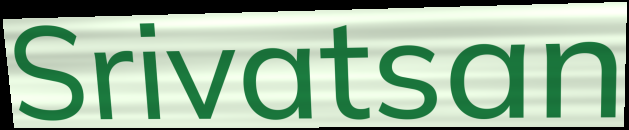
Srivatsan